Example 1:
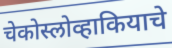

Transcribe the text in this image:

चेकोस्लोव्हाकियाचे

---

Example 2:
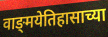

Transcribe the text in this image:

वाङ्‌मयेतिहासाच्या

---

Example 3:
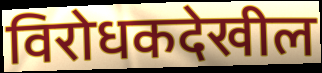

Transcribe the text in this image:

विरोधकदेखील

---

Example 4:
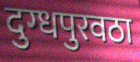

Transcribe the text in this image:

दुग्धपुरवठा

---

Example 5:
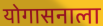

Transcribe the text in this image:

योगासनाला